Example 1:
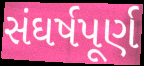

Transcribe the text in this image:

સંઘર્ષપૂર્ણ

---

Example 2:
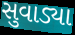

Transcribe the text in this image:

સુવાડ્યા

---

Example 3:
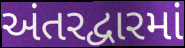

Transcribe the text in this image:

અંતરદ્વારમાં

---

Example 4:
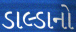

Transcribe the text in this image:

ડાલ્ડાનો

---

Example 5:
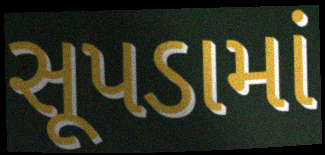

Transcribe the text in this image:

સૂપડામાં